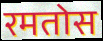
रमतोस